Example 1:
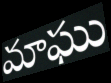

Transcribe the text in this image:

మాఘు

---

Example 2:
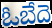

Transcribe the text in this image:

ఓబేదె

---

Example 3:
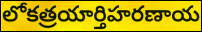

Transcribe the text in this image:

లోకత్రయార్తిహరణాయ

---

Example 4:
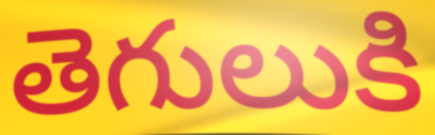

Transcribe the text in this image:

తెగులుకి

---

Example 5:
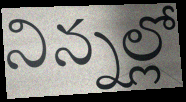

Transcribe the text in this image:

నిన్నల్లో